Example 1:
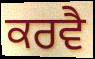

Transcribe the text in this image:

ਕਰਵੈ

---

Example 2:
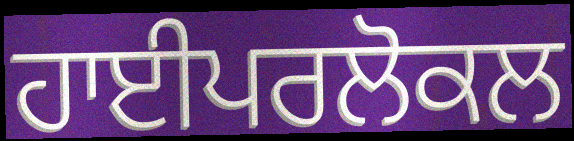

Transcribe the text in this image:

ਹਾਈਪਰਲੋਕਲ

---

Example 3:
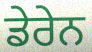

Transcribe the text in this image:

ਡੇਰੇਨ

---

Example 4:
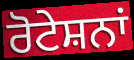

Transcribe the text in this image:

ਰੋਟੇਸ਼ਨਾਂ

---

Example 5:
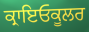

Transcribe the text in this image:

ਕ੍ਰਾਇਓਕੂਲਰ